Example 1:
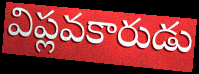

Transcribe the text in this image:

విప్లవకారుడు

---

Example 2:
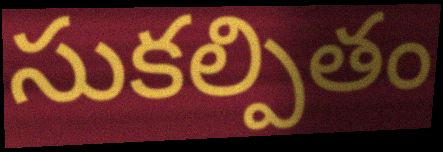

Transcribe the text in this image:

సుకల్పితం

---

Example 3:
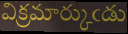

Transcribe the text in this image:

విక్రమార్కుఁడు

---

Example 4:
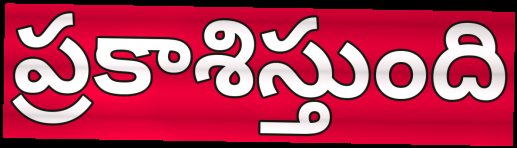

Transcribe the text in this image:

ప్రకాశిస్తుంది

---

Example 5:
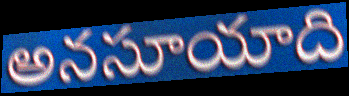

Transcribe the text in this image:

అనసూయాది